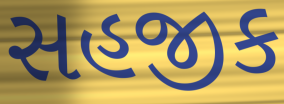
સહજીક